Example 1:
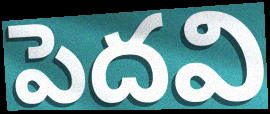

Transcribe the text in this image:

పెదవి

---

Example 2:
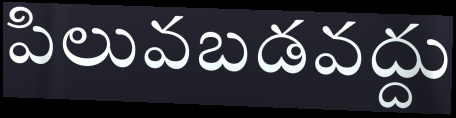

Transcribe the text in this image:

పిలువబడవద్దు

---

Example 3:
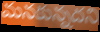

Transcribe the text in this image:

మనకున్నదని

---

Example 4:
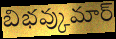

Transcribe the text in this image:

బిభవ్కుమార్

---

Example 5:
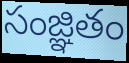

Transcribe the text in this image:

సంజ్ఞితం